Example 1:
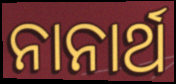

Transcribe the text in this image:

ନାନାର୍ଥ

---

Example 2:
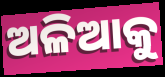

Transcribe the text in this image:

ଅଳିଆକୁ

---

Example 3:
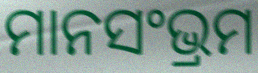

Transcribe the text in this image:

ମାନସଂଭ୍ରମ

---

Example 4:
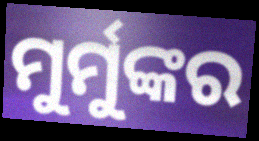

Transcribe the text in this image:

ମୁର୍ମୁଙ୍କର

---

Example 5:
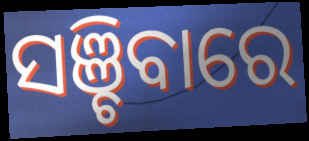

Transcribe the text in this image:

ସଞ୍ଚିବାରେ